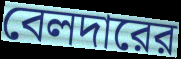
বেলদারের